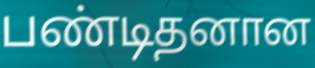
பண்டிதனான